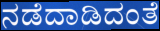
ನಡೆದಾಡಿದಂತೆ